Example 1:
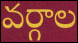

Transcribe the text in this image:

వర్గాల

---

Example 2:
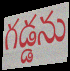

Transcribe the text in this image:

గడ్డను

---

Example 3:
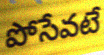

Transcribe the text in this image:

పోసేవటే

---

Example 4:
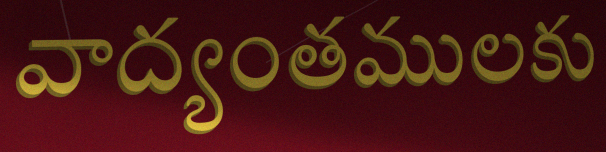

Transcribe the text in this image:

వాద్యంతములకు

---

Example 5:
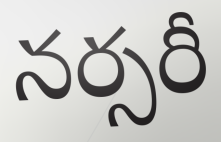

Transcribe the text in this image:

నర్సరీ